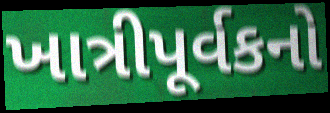
ખાત્રીપૂર્વકનો